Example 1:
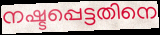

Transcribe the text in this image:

നഷ്ടപ്പെട്ടതിനെ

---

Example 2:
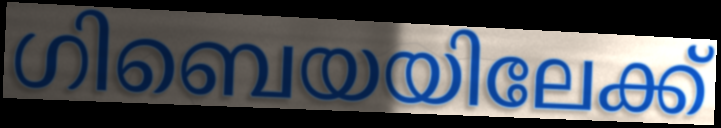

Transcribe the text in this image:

ഗിബെയയിലേക്ക്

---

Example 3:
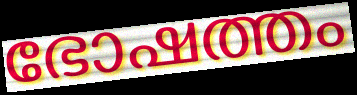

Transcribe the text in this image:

ഭോഷത്തം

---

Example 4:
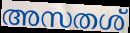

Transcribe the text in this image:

അസതശ്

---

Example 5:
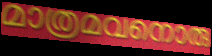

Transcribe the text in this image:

മാത്രമവനൊരു